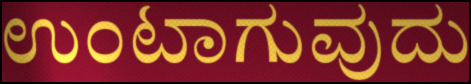
ಉಂಟಾಗುವುದು